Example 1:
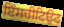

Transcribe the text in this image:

ਇੰਸਚੀਟਿਉਟ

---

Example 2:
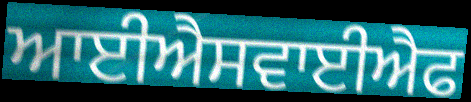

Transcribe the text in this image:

ਆਈਐਸਵਾਈਐਫ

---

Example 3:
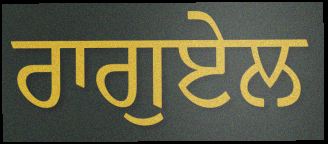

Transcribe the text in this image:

ਰਾਗੁਏਲ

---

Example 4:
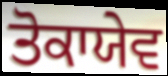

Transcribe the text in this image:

ਤੋਕਾਯੇਵ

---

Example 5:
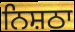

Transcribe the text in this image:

ਨਿਸ਼ਠਾ